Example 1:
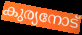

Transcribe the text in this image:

കുര്യനോട്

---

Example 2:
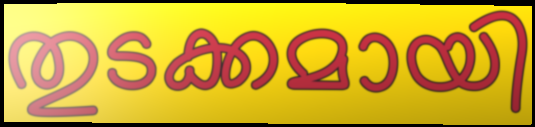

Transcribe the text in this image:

തുടക്കമായി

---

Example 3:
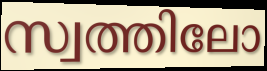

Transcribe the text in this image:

സ്വത്തിലോ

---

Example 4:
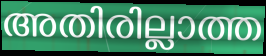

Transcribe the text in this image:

അതിരില്ലാത്ത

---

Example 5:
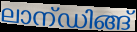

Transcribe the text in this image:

ലാന്ഡിങ്ങ്